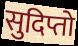
सुदिप्तो